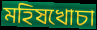
মহিষখোচা